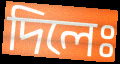
দিলেঃ